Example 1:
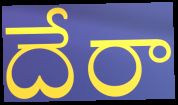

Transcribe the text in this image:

దేరా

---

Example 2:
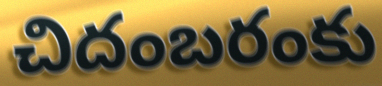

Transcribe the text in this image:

చిదంబరంకు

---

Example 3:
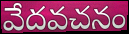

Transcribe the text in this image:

వేదవచనం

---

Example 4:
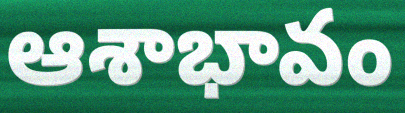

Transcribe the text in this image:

ఆశాభావం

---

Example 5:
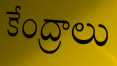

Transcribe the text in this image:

కేంద్రాలు